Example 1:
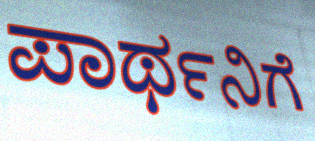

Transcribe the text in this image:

ಪಾರ್ಥನಿಗೆ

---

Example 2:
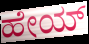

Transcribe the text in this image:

ಹೇಯ್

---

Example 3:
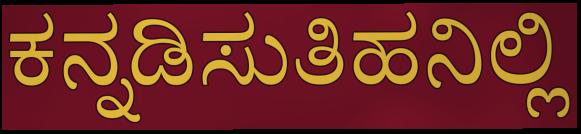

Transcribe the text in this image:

ಕನ್ನಡಿಸುತಿಹನಿಲ್ಲಿ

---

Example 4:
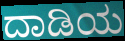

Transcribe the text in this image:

ದಾಡಿಯ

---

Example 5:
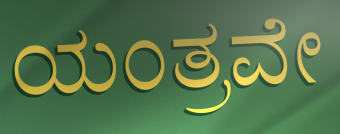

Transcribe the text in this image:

ಯಂತ್ರವೇ